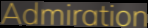
Admiration